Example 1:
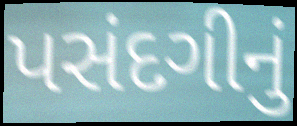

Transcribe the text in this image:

પસંદગીનું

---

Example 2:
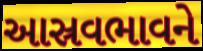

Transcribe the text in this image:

આસ્રવભાવને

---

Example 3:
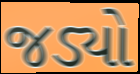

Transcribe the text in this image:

જડ્યો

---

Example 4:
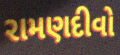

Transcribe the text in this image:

રામણદીવો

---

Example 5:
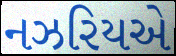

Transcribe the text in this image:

નઝરિયએ